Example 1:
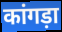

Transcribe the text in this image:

कांगड़ा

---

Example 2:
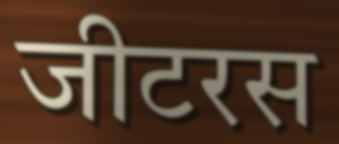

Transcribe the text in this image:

जीटरस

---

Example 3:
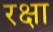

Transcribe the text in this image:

रक्षा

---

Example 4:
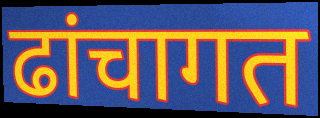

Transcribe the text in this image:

ढांचागत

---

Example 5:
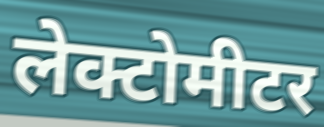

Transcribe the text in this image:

लेक्टोमीटर